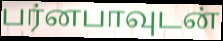
பர்னபாவுடன்